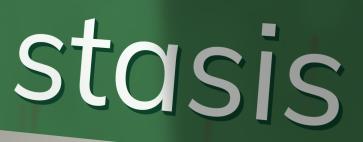
stasis